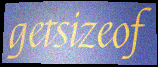
getsizeof